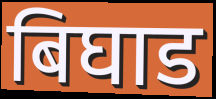
बिघाड